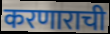
करणाराची